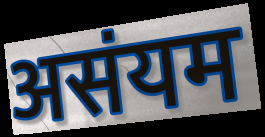
असंयम